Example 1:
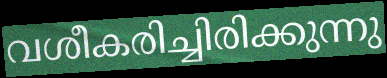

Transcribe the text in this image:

വശീകരിച്ചിരിക്കുന്നു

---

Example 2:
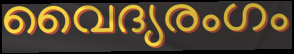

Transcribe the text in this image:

വൈദ്യരംഗം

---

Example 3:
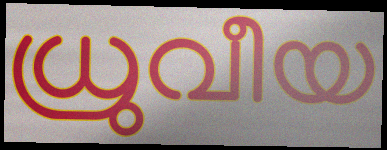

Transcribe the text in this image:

ധ്രുവീയ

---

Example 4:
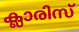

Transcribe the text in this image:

ക്ലാരിസ്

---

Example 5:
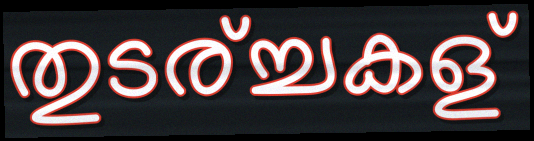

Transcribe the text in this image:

തുടര്ച്ചകള്